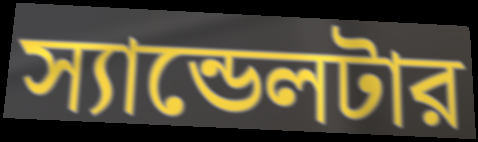
স্যান্ডেলটার